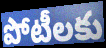
పోటీలకు